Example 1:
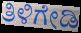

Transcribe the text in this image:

ತಿಳಿಗೇಡಿ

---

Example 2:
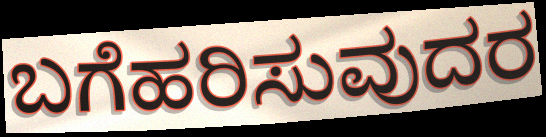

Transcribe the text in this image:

ಬಗೆಹರಿಸುವುದರ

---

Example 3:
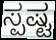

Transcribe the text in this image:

ಸ್ಪಷ್ಟ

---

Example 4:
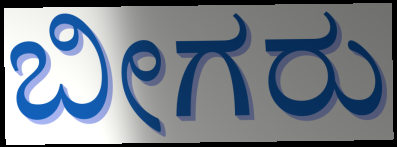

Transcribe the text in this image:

ಬೀಗರು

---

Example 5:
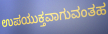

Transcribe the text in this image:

ಉಪಯುಕ್ತವಾಗುವಂತಹ